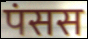
पंसस